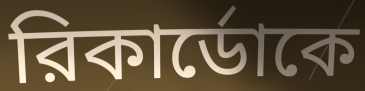
রিকার্ডোকে